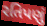
રતિપણું